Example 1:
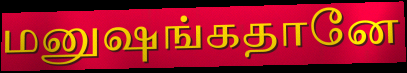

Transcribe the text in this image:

மனுஷங்கதானே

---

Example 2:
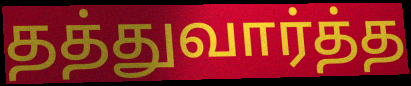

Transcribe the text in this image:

தத்துவார்த்த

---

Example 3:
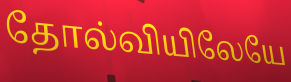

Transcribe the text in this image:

தோல்வியிலேயே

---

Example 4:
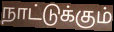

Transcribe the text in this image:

நாட்டுக்கும்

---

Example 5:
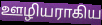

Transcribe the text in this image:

ஊழியராகிய